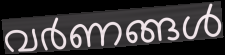
വർണങ്ങൾ